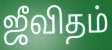
ஜீவிதம்